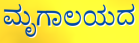
ಮೃಗಾಲಯದ